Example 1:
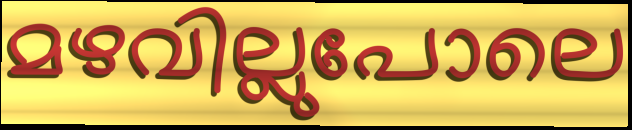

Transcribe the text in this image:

മഴവില്ലുപോലെ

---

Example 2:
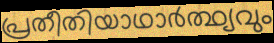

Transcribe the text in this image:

പ്രതീതിയാഥാർത്ഥ്യവും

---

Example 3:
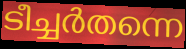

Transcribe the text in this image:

ടീച്ചർതന്നെ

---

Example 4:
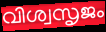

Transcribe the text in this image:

വിശ്വസൃജം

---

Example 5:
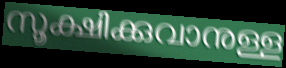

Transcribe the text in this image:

സൂക്ഷിക്കുവാനുള്ള